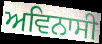
ਅਵਿਨਾਸੀ